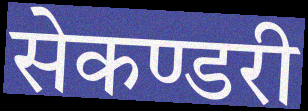
सेकण्‍डरी